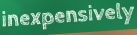
inexpensively